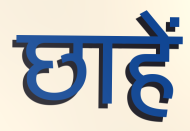
छाहें